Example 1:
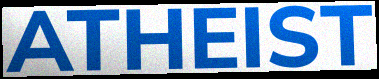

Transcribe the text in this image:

ATHEIST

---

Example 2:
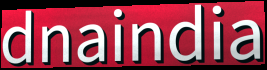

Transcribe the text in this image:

dnaindia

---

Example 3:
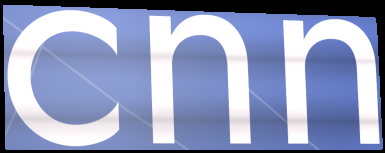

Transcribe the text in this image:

cnn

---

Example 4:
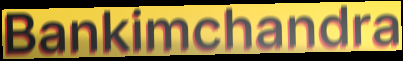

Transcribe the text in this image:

Bankimchandra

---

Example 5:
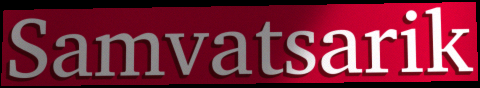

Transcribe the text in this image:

Samvatsarik